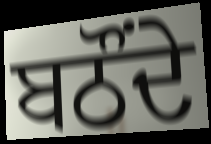
ਬਠੌਂਦੇ